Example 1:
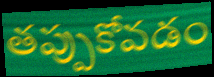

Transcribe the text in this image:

తప్పుకోవడం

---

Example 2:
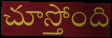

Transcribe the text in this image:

చూస్తోంది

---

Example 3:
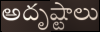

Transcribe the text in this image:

అదృష్టాలు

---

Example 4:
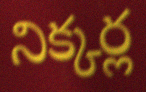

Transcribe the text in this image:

నిక్కర్ల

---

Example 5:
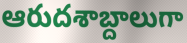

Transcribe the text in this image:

ఆరుదశాబ్దాలుగా